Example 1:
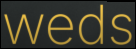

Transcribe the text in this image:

weds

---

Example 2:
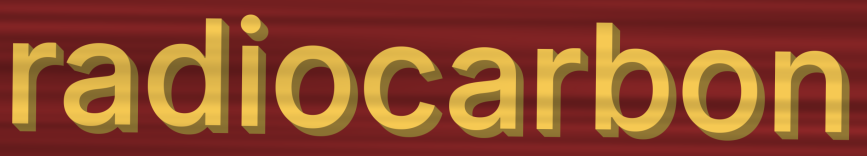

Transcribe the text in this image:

radiocarbon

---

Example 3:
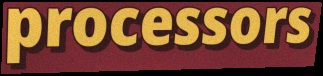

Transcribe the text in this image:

processors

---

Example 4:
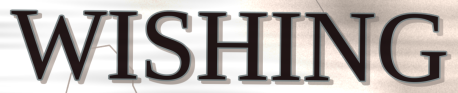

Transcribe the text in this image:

WISHING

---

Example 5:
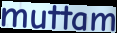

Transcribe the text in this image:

muttam